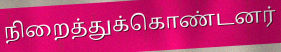
நிறைத்துக்கொண்டனர்